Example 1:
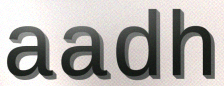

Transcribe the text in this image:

aadh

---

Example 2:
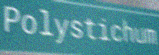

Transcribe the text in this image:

Polystichum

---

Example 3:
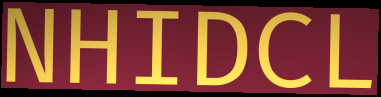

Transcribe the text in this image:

NHIDCL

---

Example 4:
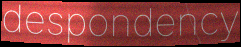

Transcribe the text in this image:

despondency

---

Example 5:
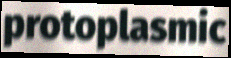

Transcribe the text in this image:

protoplasmic